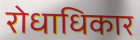
रोधाधिकार